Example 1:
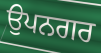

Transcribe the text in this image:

ਉਪਨਗਰ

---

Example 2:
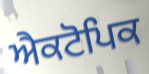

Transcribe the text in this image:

ਐਕਟੋਪਿਕ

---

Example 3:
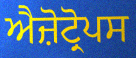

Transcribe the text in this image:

ਐਜ਼ੋਟ੍ਰੋਪਸ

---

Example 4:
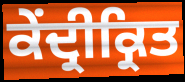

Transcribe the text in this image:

ਕੇਂਦ੍ਰੀਕ੍ਰਿਤ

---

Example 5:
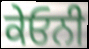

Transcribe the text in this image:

ਕੇਓਨੀ